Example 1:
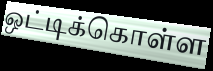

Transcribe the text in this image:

ஒட்டிக்கொள்ள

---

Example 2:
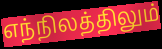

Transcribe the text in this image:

எந்நிலத்திலும்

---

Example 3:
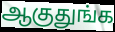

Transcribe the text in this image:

ஆகுதுங்க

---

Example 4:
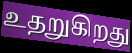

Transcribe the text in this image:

உதறுகிறது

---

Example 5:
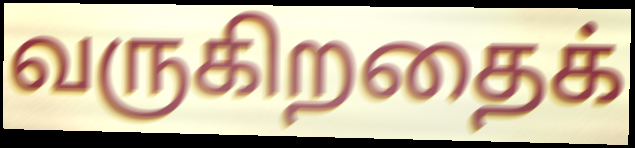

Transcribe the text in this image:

வருகிறதைக்